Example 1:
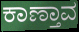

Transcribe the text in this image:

ಕಾಣ್ತಾವ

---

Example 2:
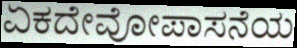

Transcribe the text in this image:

ಏಕದೇವೋಪಾಸನೆಯ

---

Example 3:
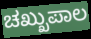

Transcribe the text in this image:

ಚಖ್ಖುಪಾಲ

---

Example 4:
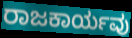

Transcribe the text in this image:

ರಾಜಕಾರ್ಯವು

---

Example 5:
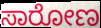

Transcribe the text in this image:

ಸಾರೋಣ